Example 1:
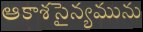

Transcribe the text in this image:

ఆకాశసైన్యమును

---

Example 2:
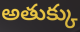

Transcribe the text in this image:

అతుక్కు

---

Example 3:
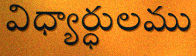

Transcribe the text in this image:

విధ్యార్ధులము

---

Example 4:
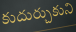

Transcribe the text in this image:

కుదుర్చుకుని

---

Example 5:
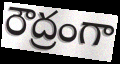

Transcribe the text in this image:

రౌద్రంగా